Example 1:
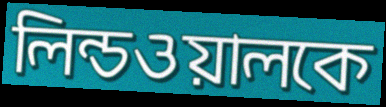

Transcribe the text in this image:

লিন্ডওয়ালকে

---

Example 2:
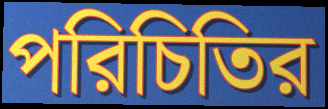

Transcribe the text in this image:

পরিচিতির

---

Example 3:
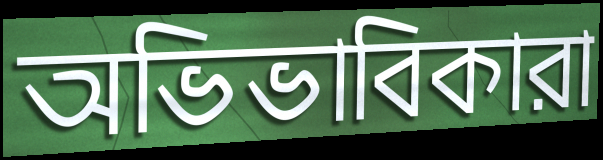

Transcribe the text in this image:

অভিভাবিকারা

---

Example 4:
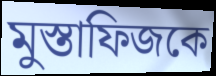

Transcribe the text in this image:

মুস্তাফিজকে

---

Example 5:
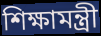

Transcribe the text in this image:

শিক্ষামন্ত্রী